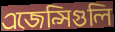
এজেন্সিগুলি